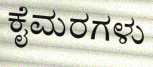
ಕೈಮರಗಳು